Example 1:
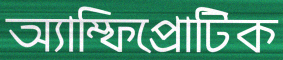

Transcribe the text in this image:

অ্যাম্ফিপ্রোটিক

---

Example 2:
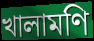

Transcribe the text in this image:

খালামণি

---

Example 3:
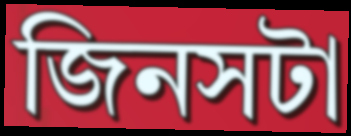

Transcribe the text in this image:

জিনসটা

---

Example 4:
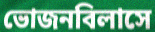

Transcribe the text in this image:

ভোজনবিলাসে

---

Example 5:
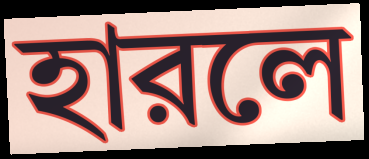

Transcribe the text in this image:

হারলে